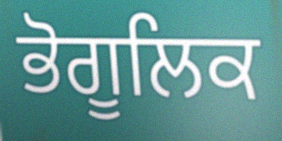
ਭੋਗੂਲਿਕ